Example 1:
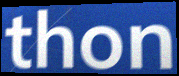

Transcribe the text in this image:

thon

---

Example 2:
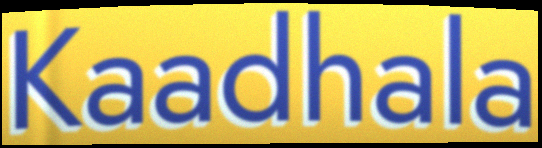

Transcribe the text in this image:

Kaadhala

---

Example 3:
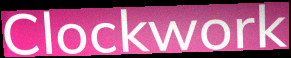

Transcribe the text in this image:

Clockwork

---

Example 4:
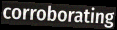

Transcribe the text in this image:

corroborating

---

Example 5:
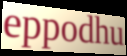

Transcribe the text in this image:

eppodhu